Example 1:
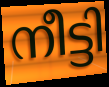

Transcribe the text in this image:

നീട്ടി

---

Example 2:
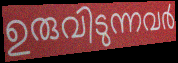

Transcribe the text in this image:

ഉരുവിടുന്നവർ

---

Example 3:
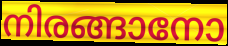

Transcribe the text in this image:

നിരങ്ങാനോ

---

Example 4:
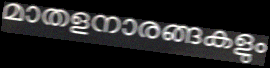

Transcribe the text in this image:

മാതളനാരങ്ങകളും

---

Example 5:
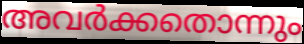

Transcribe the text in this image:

അവർക്കതൊന്നും